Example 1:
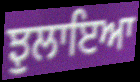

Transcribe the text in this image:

ਝੁਲਾਇਆ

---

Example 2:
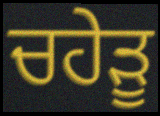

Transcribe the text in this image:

ਚਹੇੜੂ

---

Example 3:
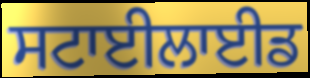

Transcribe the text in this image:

ਸਟਾਈਲਾਈਡ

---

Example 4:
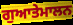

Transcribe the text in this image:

ਗੁਆਤੇਮਾਲਨ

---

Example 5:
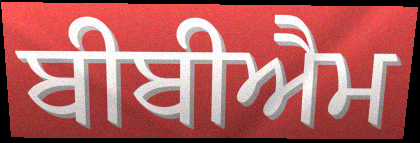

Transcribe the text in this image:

ਬੀਬੀਐਮ